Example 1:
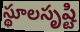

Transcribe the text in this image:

స్థూలసృష్టి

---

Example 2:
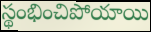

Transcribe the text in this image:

స్థంభించిపోయాయి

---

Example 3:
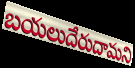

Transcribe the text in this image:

బయలుదేరుదామని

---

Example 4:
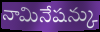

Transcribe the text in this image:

నామినేషన్కు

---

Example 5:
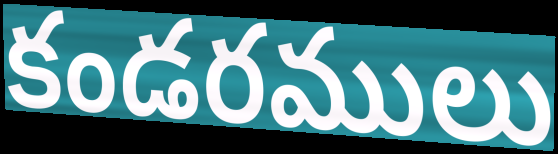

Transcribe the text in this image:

కండరములు